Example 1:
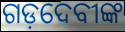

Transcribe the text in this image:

ଗଡ଼ଦେବୀଙ୍କ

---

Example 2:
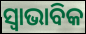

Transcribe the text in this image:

ସ୍ଵାଭାବିକ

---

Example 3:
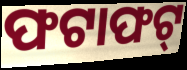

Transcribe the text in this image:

ଫଟାଫଟ୍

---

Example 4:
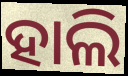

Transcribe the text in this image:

ହାଲି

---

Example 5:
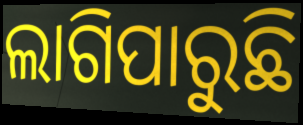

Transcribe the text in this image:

ଲାଗିପାରୁଛି